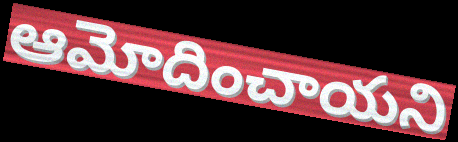
ఆమోదించాయని